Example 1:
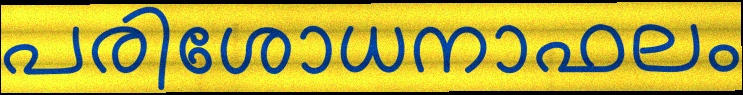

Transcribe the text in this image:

പരിശോധനാഫലം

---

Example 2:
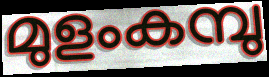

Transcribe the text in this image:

മുളംകമ്പു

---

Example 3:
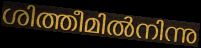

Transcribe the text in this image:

ശിത്തീമിൽനിന്നു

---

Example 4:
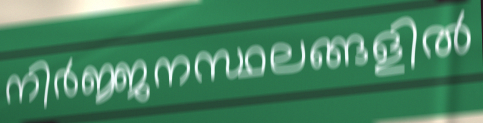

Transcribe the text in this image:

നിർജ്ജനസ്ഥലങ്ങളിൽ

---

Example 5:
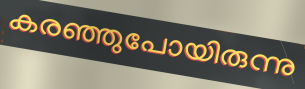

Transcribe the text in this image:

കരഞ്ഞുപോയിരുന്നു